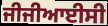
ਜੀਜੀਆਈਸੀ